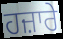
ਹਜ਼ਾਰੇ